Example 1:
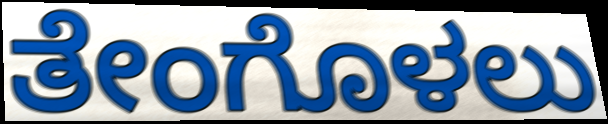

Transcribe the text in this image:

ತೇಂಗೊಳಲು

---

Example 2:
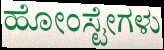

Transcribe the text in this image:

ಹೋಂಸ್ಟೇಗಳು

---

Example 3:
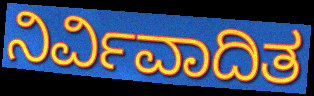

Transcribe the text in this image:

ನಿರ್ವಿವಾದಿತ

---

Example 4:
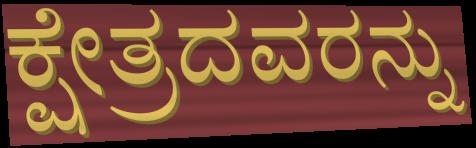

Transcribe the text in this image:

ಕ್ಷೇತ್ರದವರನ್ನು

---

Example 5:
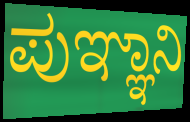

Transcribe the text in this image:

ಪುಞ್ಞಾನಿ